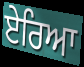
ਏਰਿਆ